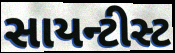
સાયન્ટીસ્ટ